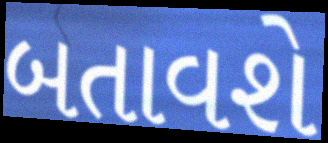
બતાવશે